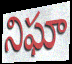
నిఘా